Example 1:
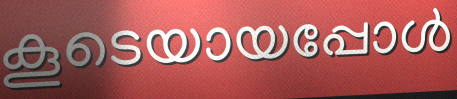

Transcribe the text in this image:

കൂടെയായപ്പോൾ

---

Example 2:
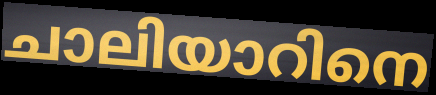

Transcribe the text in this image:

ചാലിയാറിനെ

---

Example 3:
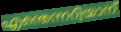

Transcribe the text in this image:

എന്തെന്നറിയാന്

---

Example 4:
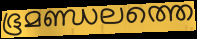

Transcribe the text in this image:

ഭൂമണ്ഡലത്തെ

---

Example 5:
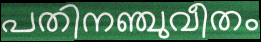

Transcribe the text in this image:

പതിനഞ്ചുവീതം